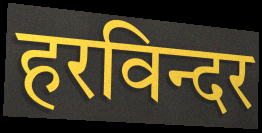
हरविन्दर